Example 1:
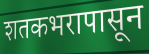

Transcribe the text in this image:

शतकभरापासून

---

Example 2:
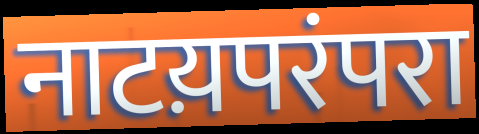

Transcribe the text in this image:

नाटय़परंपरा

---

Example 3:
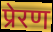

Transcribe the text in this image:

प्रेरण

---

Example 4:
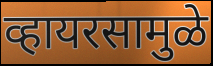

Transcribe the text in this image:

व्हायरसामुळे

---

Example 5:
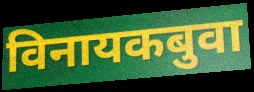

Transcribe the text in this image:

विनायकबुवा